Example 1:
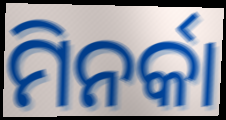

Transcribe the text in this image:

ମିନର୍କା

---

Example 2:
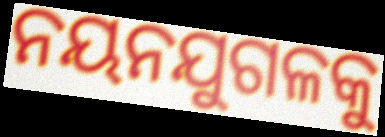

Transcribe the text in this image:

ନୟନଯୁଗଳକୁ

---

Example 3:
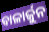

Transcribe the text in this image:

ବାଳାର୍ଜୁନ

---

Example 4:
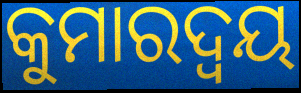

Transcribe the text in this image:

କୁମାରଦ୍ଵୟ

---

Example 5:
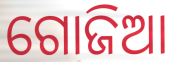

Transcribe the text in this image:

ଗୋଜିଆ